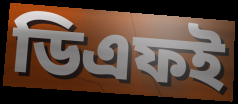
ডিএফই